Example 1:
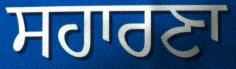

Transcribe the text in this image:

ਸਹਾਰਣਾ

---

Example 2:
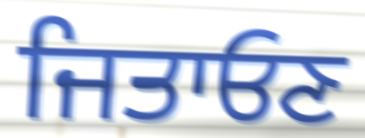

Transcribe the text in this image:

ਜਿਤਾਓਣ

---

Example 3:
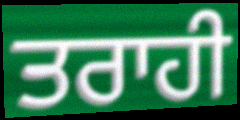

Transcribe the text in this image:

ਤਰਾਹੀ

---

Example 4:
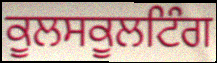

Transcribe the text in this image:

ਕੂਲਸਕੂਲਟਿੰਗ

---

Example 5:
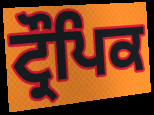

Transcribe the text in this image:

ਟ੍ਰੌਪਿਕ